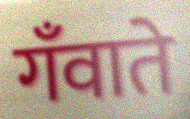
गँवाते